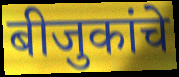
बीजुकांचे